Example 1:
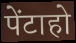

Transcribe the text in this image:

पेंटाहो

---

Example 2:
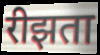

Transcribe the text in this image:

रीझता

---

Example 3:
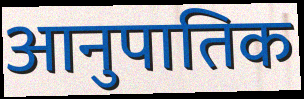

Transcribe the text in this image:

आनुपातिक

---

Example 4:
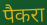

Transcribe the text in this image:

पैकरा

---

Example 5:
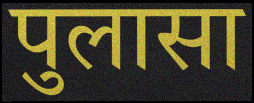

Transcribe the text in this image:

पुलासा